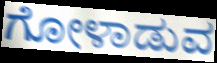
ಗೋಳಾಡುವ